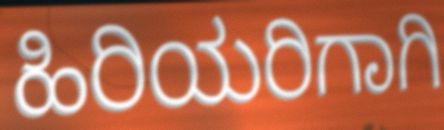
ಹಿರಿಯರಿಗಾಗಿ